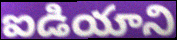
ఐడియాని